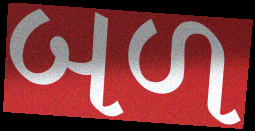
બળ